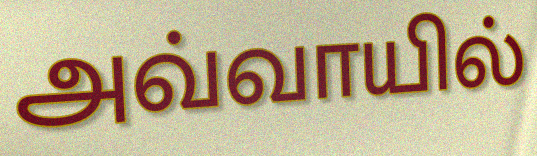
அவ்வாயில்